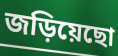
জড়িয়েছো